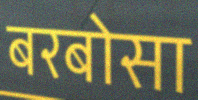
बरबोसा